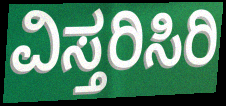
ವಿಸ್ತರಿಸಿರಿ